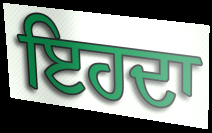
ਇਹਦਾ